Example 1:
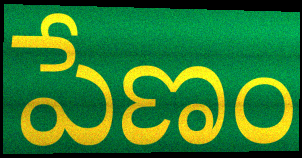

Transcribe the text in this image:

పేణం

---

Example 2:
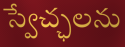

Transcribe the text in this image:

స్వేచ్ఛలను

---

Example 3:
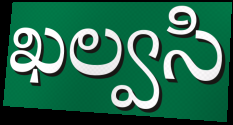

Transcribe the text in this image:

ఖల్వసి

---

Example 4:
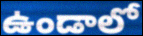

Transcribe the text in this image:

ఉండాలో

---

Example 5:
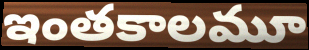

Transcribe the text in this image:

ఇంతకాలమూ